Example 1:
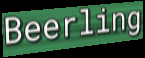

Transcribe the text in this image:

Beerling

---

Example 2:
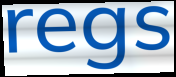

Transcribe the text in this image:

regs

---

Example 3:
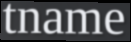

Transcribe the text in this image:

tname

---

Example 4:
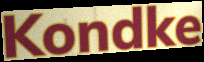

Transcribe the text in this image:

Kondke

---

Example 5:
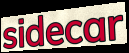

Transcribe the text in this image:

sidecar